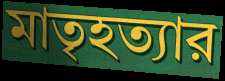
মাতৃহত্যার